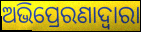
ଅଭିପ୍ରେରଣାଦ୍ୱାରା